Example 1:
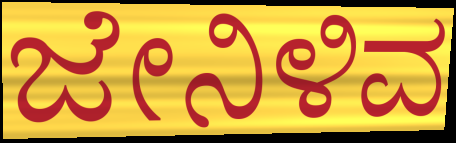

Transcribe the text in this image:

ಜೇನಿಳಿವ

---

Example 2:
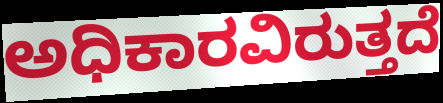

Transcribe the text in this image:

ಅಧಿಕಾರವಿರುತ್ತದೆ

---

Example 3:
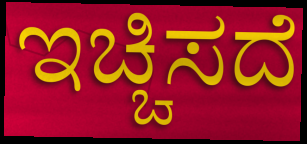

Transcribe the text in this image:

ಇಚ್ಚಿಸದೆ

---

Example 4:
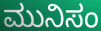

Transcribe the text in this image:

ಮುನಿಸಂ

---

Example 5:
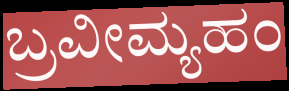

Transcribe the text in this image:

ಬ್ರವೀಮ್ಯಹಂ